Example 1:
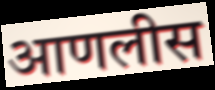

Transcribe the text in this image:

आणलीस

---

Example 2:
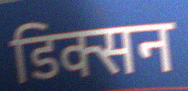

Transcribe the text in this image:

डिक्सन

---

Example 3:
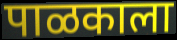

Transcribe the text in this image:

पाळकाला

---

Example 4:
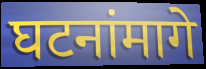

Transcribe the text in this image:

घटनांमागे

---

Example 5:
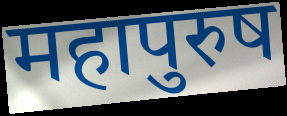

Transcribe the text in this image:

महापुरुष